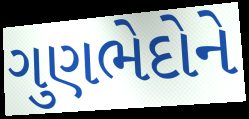
ગુણભેદોને